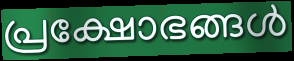
പ്രക്ഷോഭങ്ങൾ